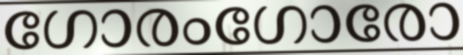
ഗോരംഗോരോ